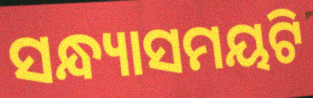
ସନ୍ଧ୍ୟାସମୟଟି